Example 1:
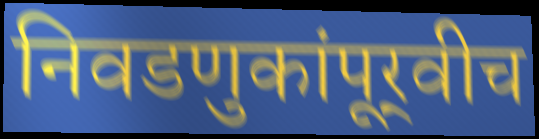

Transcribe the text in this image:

निवडणुकांपूर्वीच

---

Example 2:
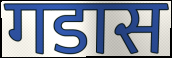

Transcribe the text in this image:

गडास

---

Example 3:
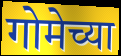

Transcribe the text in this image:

गोमेच्या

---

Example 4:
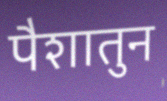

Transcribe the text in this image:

पैशातुन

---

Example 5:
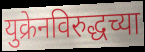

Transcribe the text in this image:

युक्रेनविरुद्धच्या